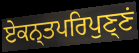
ਏਕਨ੍ਤਪਰਿਪੁਣ੍ਣਂ